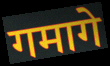
गमागे